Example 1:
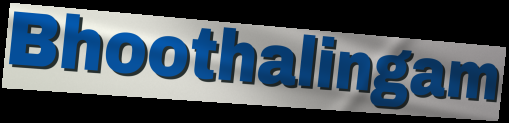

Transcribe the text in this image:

Bhoothalingam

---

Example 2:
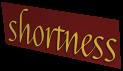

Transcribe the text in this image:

shortness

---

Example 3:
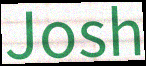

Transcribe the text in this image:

Josh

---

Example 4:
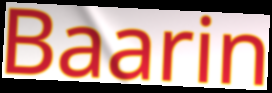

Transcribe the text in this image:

Baarin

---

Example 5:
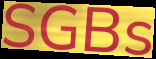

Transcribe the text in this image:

SGBs